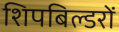
शिपबिल्डरों